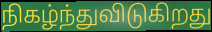
நிகழ்ந்துவிடுகிறது